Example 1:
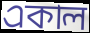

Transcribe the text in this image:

একাল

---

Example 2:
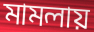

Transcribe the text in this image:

মামলায়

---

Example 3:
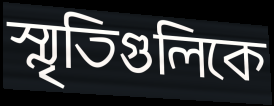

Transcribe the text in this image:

স্মৃতিগুলিকে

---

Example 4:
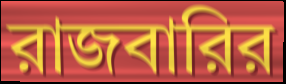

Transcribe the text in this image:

রাজবারির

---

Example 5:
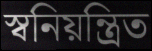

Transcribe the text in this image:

স্বনিয়ন্ত্রিত